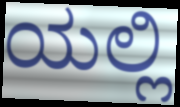
ಯಲ್ಲಿ